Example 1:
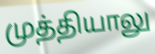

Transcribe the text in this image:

முத்தியாலு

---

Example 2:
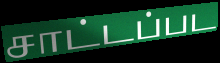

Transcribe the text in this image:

சாட்டப்பட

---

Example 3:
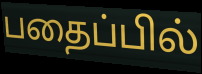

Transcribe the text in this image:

பதைப்பில்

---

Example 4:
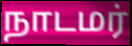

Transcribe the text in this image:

நாடமர்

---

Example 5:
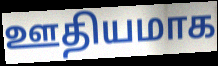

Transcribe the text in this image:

ஊதியமாக